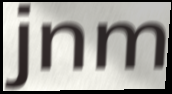
jnm